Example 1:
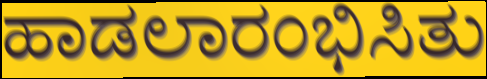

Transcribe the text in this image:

ಹಾಡಲಾರಂಭಿಸಿತು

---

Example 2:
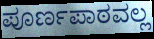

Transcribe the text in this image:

ಪೂರ್ಣಪಾಠವಲ್ಲ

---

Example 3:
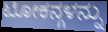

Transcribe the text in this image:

ಟೋಕನ್ಗಳನ್ನು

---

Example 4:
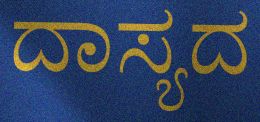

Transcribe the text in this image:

ದಾಸ್ಯದ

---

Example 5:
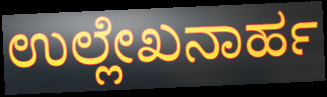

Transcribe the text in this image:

ಉಲ್ಲೇಖನಾರ್ಹ